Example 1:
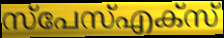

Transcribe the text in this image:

സ്പേസ്എക്സ്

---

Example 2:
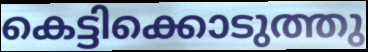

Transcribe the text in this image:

കെട്ടിക്കൊടുത്തു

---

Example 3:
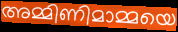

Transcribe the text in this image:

അമ്മിണിമാമ്മയെ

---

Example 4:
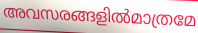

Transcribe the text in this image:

അവസരങ്ങളിൽമാത്രമേ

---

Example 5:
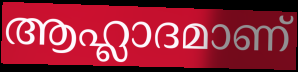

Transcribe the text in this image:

ആഹ്ലാദമാണ്